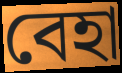
বেহা